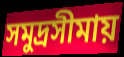
সমুদ্রসীমায়